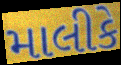
માલીકે